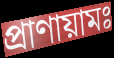
প্রাণায়ামঃ